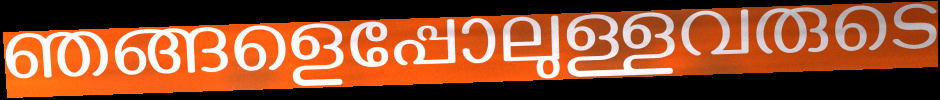
ഞങ്ങളെപ്പോലുള്ളവരുടെ